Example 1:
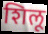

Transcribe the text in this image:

शिलू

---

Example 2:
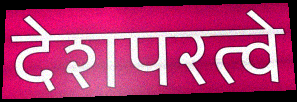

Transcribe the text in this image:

देशपरत्वे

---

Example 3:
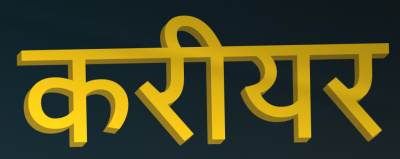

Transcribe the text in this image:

करीयर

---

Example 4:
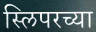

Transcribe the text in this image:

स्लिपरच्या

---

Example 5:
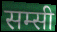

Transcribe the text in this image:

सम्सी